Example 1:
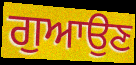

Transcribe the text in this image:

ਗੁਆਉਣ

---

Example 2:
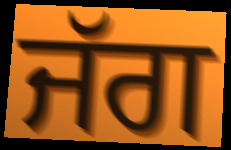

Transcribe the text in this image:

ਜੱਗ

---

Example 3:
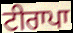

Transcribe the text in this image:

ਟੀਰਾਪਾ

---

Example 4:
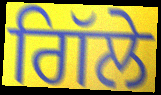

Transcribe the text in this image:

ਗਿੱਲੇ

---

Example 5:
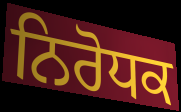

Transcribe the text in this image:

ਨਿਰੋਧਕ